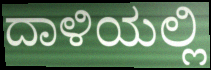
ದಾಳಿಯಲ್ಲಿ